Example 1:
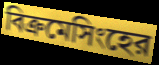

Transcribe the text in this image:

বিক্রমেসিংহের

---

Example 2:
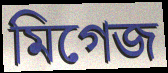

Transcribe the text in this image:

মিগেজ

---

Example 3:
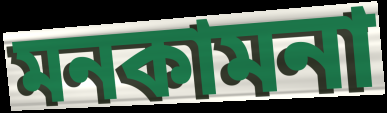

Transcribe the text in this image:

মনকামনা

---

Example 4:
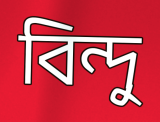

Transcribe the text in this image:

বিন্দু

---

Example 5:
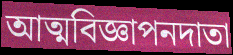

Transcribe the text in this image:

আত্মবিজ্ঞাপনদাতা